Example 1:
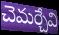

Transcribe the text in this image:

చెమర్చేవి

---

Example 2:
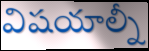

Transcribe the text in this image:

విషయాల్నీ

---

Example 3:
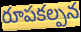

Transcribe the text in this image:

రూపకల్పన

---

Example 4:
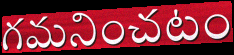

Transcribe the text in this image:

గమనించటం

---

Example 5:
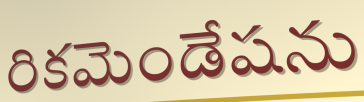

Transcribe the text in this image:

రికమెండేషను